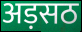
अड़सठ